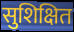
सुशिक्षित